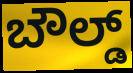
ಬೌಲ್ಡ್